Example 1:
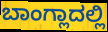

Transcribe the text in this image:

ಬಾಂಗ್ಲಾದಲ್ಲಿ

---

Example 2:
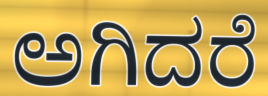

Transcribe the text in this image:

ಅಗಿದರೆ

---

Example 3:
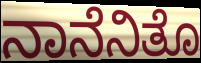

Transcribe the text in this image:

ನಾನೆನಿತೊ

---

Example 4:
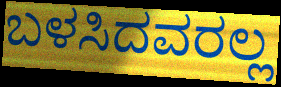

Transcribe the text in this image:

ಬಳಸಿದವರಲ್ಲ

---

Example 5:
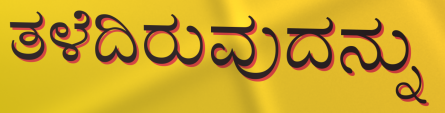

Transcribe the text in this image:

ತಳೆದಿರುವುದನ್ನು